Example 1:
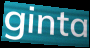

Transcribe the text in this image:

ginta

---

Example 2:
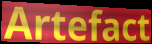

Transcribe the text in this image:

Artefact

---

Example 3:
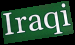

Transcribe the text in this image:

Iraqi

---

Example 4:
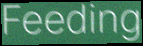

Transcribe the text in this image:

Feeding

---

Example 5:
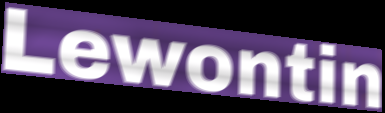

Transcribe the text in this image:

Lewontin